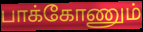
பாக்கோணும்